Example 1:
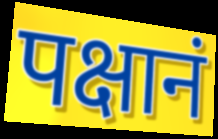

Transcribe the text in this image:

पक्षानं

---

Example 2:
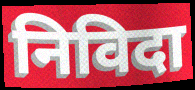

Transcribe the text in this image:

निविदा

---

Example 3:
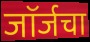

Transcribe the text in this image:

जॉर्जचा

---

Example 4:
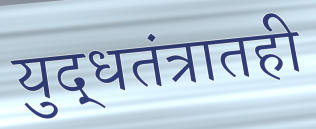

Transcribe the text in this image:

युद्धतंत्रातही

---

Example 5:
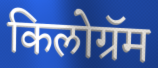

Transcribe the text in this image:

किलोग्रॅम